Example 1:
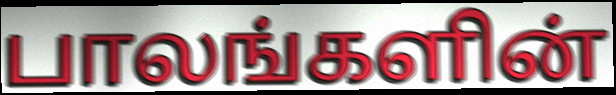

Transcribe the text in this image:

பாலங்களின்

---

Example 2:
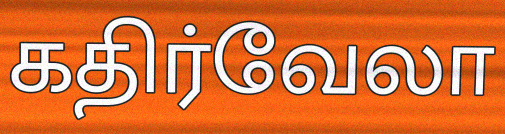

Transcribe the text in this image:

கதிர்வேலா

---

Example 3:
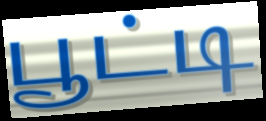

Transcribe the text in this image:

பூட்டி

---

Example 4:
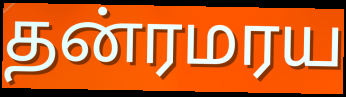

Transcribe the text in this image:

தன்ரமரய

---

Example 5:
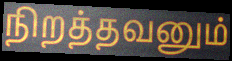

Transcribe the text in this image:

நிறத்தவனும்